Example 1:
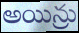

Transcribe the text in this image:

అయిన్రు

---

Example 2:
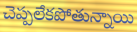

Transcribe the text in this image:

చెప్పలేకపోతున్నాయి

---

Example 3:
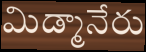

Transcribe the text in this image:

మిడ్మానేరు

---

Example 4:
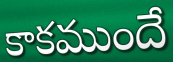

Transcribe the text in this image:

కాకముందే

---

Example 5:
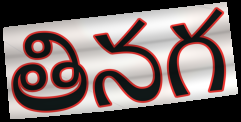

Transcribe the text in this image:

తినగ